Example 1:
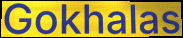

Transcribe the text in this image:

Gokhalas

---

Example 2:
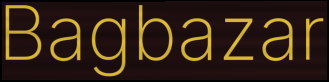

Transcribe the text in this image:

Bagbazar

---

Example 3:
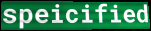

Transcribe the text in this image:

speicified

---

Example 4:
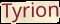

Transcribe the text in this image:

Tyrion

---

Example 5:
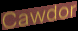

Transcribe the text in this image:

Cawdor